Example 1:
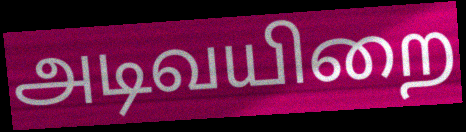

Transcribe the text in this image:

அடிவயிறை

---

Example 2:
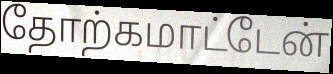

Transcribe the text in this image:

தோற்கமாட்டேன்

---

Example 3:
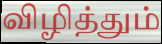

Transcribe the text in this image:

விழித்தும்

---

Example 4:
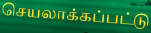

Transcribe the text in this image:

செயலாக்கப்பட்டு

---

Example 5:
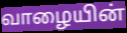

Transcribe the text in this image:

வாழையின்